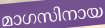
മാഗസിനായ